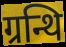
ग्रन्थि